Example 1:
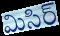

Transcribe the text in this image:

మిసిర్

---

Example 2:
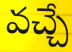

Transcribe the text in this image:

వచ్చే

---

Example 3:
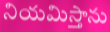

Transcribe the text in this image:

నియమిస్తాను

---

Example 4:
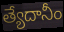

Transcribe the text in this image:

త్యేదానీం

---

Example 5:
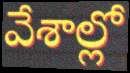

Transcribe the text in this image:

వేశాల్లో